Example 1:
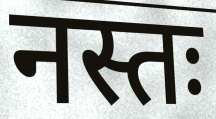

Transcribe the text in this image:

नस्तः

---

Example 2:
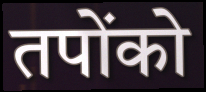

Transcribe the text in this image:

तपोंको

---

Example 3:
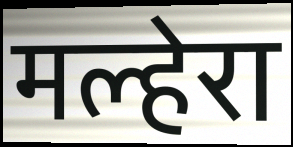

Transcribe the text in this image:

मल्हेरा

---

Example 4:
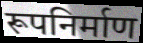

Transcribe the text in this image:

रूपनिर्माण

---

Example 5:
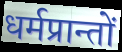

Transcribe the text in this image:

धर्मप्रान्तों